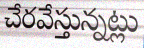
చేరవేస్తున్నట్లు